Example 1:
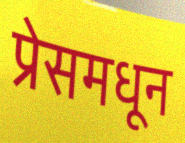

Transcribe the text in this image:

प्रेसमधून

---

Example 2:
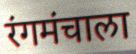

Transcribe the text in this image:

रंगमंचाला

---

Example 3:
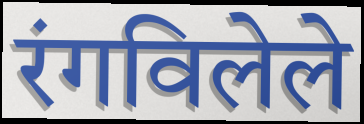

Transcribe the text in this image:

रंगविलेले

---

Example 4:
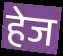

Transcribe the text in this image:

हेज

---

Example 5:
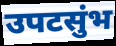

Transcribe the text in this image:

उपटसुंभ